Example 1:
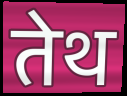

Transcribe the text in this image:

तेथ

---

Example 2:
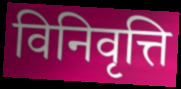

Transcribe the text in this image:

विनिवृत्ति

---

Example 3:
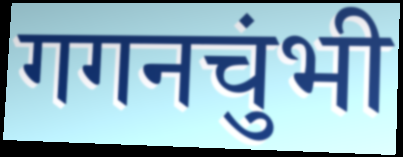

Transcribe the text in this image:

गगनचुंभी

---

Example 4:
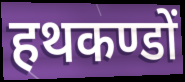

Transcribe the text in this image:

हथकण्डों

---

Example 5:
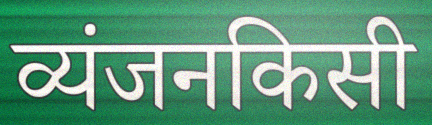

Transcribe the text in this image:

व्यंजनकिसी